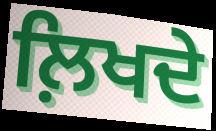
ਲ਼ਿਖਦੇ